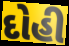
દોહી